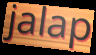
jalap